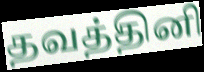
தவத்தினி